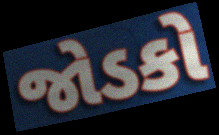
જોડકો